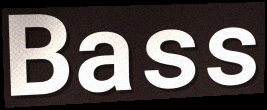
Bass